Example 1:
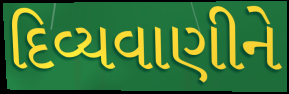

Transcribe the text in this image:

દિવ્યવાણીને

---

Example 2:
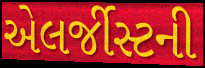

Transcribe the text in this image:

એલર્જીસ્ટની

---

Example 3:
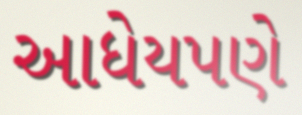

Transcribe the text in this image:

આધેયપણે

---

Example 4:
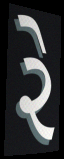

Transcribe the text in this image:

રે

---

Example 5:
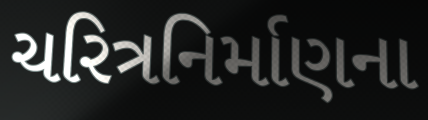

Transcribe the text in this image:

ચરિત્રનિર્માણના